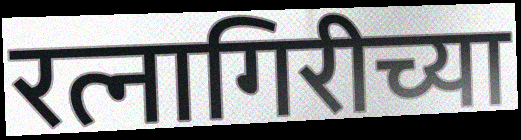
रत्नागिरीच्या